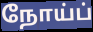
நோய்ப்